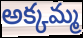
అక్కమ్మ